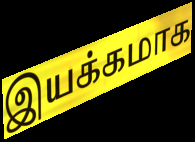
இயக்கமாக